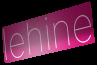
lehine